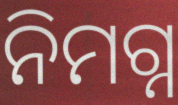
ନିମଗ୍ନ